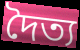
দৈত্য